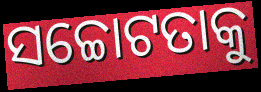
ସଚ୍ଚୋଟତାକୁ